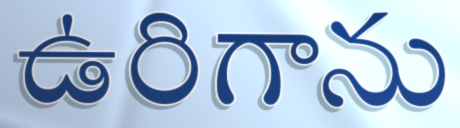
ఉరిగాను